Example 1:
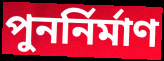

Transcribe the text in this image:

পুনর্নির্মাণ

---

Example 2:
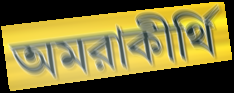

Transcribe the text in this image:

অমরাকীর্থি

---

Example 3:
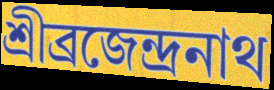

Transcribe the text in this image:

শ্রীব্রজেন্দ্রনাথ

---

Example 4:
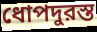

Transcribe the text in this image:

ধোপদুরস্ত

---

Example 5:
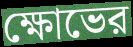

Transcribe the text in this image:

ক্ষোভের